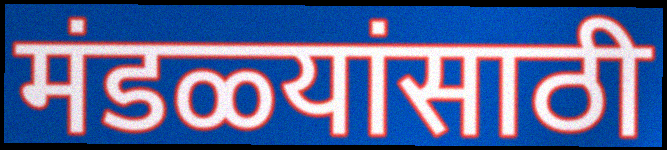
मंडळ्यांसाठी